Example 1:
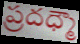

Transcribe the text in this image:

ప్రదధ్మౌ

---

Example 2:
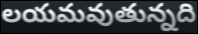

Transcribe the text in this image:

లయమవుతున్నది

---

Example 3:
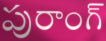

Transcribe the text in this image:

పురాంగ్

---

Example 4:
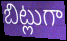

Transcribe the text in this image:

బిట్లుగా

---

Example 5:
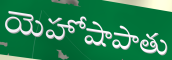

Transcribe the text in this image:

యెహోషాపాతు